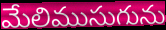
మేలిముసుగును